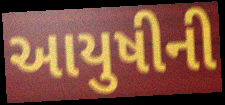
આયુષીની